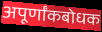
अपूर्णांकबोधक